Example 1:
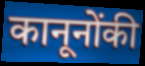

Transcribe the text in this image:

कानूनोंकी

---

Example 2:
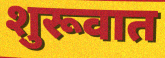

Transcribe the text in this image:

शुरूवात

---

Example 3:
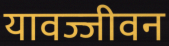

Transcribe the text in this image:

यावज्जीवन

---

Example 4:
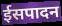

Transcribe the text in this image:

ईसपादन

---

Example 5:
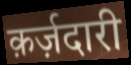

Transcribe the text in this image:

क़र्ज़दारी